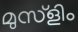
മുസ്ളിം